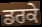
ਡਰਕੇ